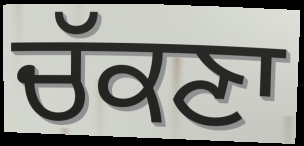
ਚੱਕਣਾ